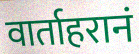
वार्ताहरानं